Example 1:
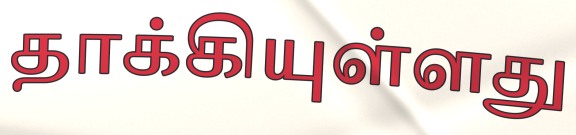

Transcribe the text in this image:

தாக்கியுள்ளது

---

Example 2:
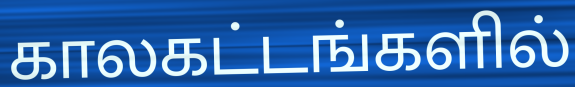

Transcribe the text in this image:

காலகட்டங்களில்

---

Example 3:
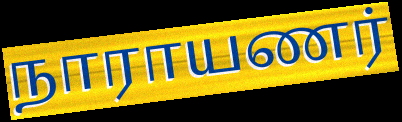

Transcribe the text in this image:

நாராயணர்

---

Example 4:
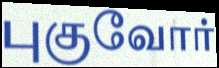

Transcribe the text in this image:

புகுவோர்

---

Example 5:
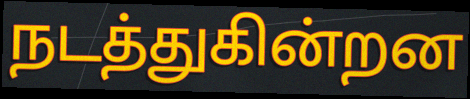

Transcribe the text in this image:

நடத்துகின்றன